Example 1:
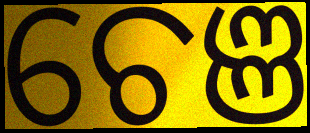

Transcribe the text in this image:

ଚେଞ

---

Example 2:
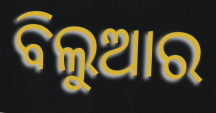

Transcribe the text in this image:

ବିଲୁଆର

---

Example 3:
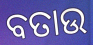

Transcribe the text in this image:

ବତାଉ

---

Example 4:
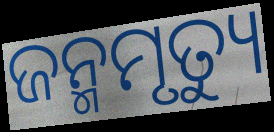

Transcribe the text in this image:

ଜନ୍ମମୃତ୍ୟୁ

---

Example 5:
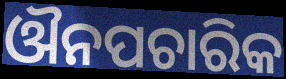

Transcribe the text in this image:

ଔନପଚାରିକ